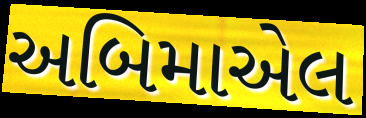
અબિમાએલ